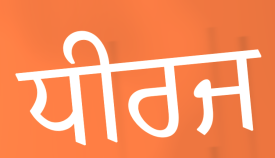
ਧੀਰਜ